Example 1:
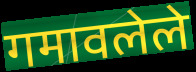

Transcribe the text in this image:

गमावलेले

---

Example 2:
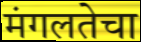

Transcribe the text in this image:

मंगलतेचा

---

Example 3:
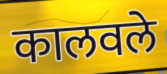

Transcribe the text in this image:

कालवले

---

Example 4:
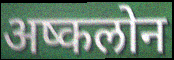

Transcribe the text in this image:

अष्कलोन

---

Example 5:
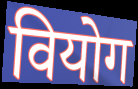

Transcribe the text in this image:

वियोग